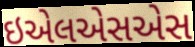
ઇએલએસએસ